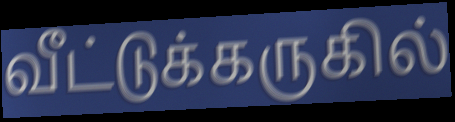
வீட்டுக்கருகில்